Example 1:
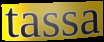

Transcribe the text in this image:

tassa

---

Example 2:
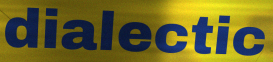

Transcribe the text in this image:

dialectic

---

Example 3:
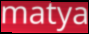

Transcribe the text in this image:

matya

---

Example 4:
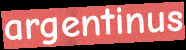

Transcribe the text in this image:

argentinus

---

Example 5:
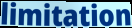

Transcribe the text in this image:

limitation